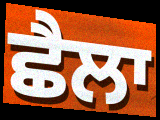
ਛੈਲਾ